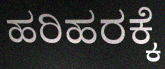
ಹರಿಹರಕ್ಕೆ